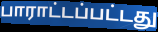
பாராட்டப்பட்டது